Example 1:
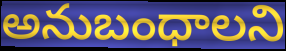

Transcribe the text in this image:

అనుబంధాలని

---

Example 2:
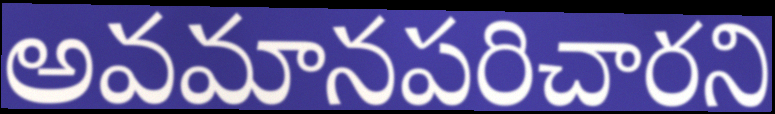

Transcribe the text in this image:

అవమానపరిచారని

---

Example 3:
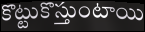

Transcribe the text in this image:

కొట్టుకొస్తుంటాయి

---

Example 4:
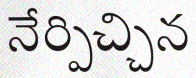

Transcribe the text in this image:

నేర్పిచ్చిన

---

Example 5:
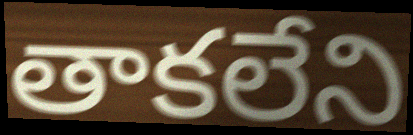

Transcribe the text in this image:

తాకలేని